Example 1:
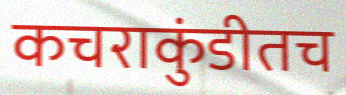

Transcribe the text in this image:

कचराकुंडीतच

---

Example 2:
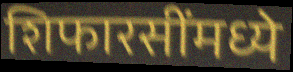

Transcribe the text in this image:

शिफारसींमध्ये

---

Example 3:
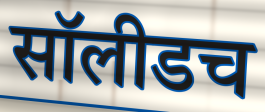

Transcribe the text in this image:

सॉलीडच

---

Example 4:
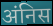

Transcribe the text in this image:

अंनिस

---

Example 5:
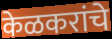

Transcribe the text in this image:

केळकरांचे